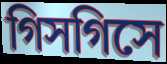
গিসগিসে